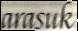
arasuk